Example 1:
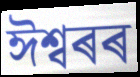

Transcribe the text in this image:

ঈশ্বৰৰ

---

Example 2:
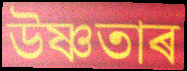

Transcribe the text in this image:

উষ্ণতাৰ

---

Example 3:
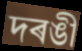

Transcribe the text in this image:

দৰঙী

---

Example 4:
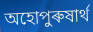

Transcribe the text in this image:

অহোপুৰুষাৰ্থ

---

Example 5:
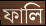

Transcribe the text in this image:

ফালি